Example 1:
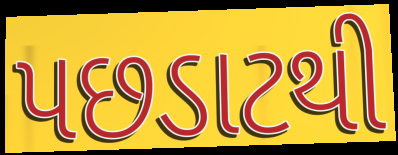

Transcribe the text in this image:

પછડાટથી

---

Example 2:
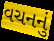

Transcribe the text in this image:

વચનનું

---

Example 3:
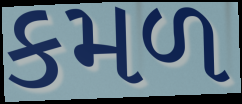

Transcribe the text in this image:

કમળ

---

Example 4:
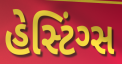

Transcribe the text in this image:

હેસ્ટિંગ્સ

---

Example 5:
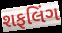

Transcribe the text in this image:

શફલિંગ